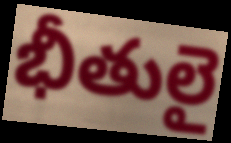
భీతులై